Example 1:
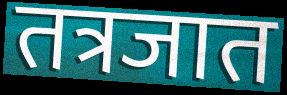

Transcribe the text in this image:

तत्रजात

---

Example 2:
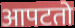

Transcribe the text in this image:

आपटतो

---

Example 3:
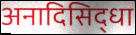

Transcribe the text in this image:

अनादिसिद्धा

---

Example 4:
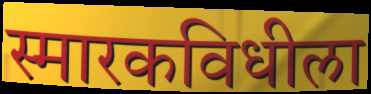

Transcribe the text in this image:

स्मारकविधीला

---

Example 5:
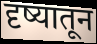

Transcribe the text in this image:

दृष्यातून